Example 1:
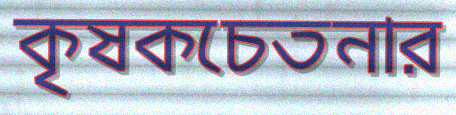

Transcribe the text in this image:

কৃষকচেতনার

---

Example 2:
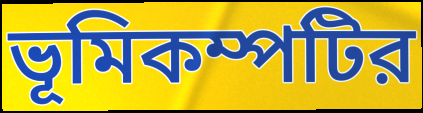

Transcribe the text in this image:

ভূমিকম্পটির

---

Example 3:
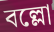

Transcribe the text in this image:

বল্লো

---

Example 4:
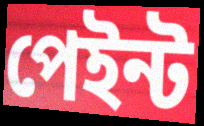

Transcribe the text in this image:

পেইন্ট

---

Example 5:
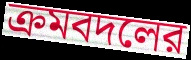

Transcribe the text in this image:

ক্রমবদলের